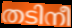
തടിനീ